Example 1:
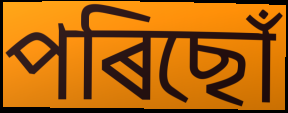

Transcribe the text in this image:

পৰিছোঁ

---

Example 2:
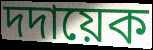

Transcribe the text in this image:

দদায়েক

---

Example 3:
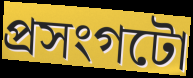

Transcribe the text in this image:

প্ৰসংগটো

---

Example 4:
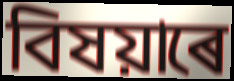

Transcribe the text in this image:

বিষয়াৰে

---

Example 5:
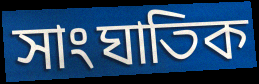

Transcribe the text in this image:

সাংঘাতিক